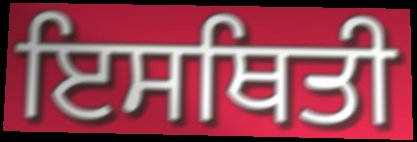
ਇਸਥਿਤੀ